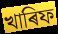
খাৰিফ